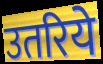
उतरिये